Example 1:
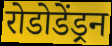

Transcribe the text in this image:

रोडोडेंड्रन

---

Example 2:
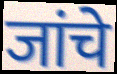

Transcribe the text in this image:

जांचे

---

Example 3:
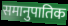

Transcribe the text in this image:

समानुपातिक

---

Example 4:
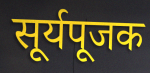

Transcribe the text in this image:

सूर्यपूजक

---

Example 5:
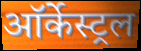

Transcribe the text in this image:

ऑर्केस्ट्रल